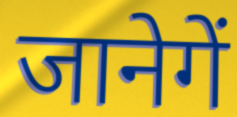
जानेगें